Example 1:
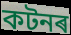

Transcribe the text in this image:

কটনৰ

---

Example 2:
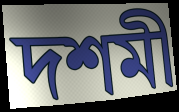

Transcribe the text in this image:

দশমী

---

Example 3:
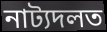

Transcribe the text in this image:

নাট্যদলত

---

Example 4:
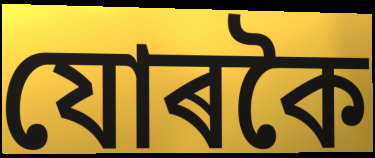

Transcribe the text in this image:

যোৰকৈ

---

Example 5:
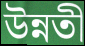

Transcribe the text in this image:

উন্নতী